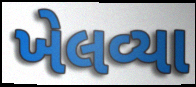
ખેલવ્યા